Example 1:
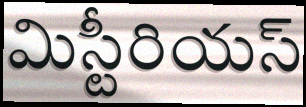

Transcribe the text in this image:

మిస్టీరియస్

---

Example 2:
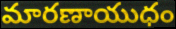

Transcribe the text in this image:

మారణాయుధం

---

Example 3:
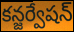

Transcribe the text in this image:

కన్జర్వేషన్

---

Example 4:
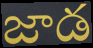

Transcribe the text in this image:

జాడ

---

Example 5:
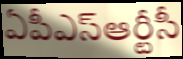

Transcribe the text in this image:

ఏపీఎస్ఆర్టీసీ